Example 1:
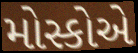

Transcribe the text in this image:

મોસ્કોએ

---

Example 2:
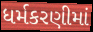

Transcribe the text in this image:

ધર્મકરણીમાં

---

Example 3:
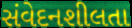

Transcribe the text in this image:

સંવેદનશીલતા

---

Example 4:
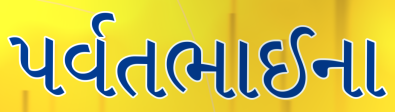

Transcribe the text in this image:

પર્વતભાઈના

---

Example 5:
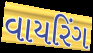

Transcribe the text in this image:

વાયરિંગ